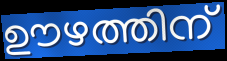
ഊഴത്തിന്